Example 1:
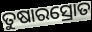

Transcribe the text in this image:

ତୁଷାରସ୍ରୋତ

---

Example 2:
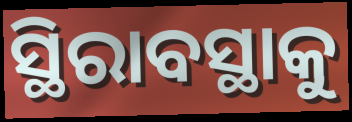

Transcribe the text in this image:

ସ୍ଥିରାବସ୍ଥାକୁ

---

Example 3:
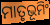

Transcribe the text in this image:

ମାତୃଭୂମିଂ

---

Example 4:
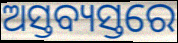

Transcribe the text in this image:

ଅସ୍ତବ୍ୟସ୍ତରେ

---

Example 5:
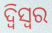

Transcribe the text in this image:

ଦ୍ଵିସ୍ଵର